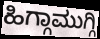
ಹಿಗ್ಗಾಮುಗ್ಗಿ